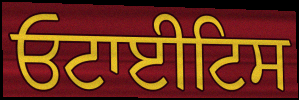
ਓਟਾਈਟਿਸ